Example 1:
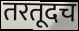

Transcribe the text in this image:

तरतूदच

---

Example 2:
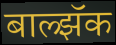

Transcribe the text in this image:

बाल्झॅक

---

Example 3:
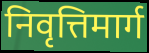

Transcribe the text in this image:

निवृत्तिमार्ग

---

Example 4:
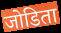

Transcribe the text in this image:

जोडिता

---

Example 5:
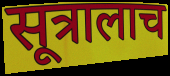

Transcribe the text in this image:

सूत्रालाच